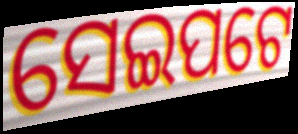
ସେଇପଟେ